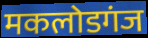
मकलोडगंज